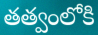
తత్వంలోకి